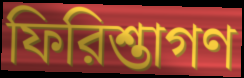
ফিরিশ্তাগণ